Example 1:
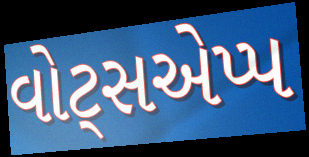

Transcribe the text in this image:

વોટ્સએપ્પ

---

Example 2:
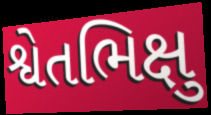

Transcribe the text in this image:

શ્વેતભિક્ષુ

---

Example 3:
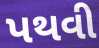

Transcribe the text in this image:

પથવી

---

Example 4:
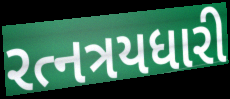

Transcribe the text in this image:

રત્નત્રયધારી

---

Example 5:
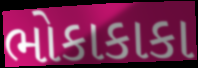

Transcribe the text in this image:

ભોકાકાકા